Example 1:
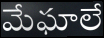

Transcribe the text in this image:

మేఘాలే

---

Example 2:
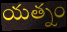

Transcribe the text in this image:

యత్నం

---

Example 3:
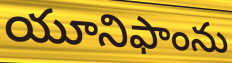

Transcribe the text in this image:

యూనిఫాంను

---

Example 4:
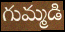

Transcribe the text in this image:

గుమ్మడి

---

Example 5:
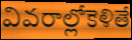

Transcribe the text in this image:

వివరాల్లోకెళితే